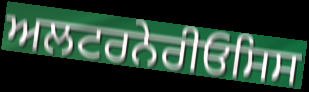
ਅਲਟਰਨੇਰੀਓਸਿਸ